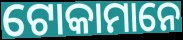
ଟୋକାମାନେ